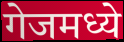
गेजमध्ये